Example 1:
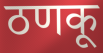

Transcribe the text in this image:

ठणकू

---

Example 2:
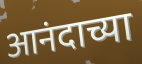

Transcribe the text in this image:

आनंदाच्या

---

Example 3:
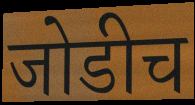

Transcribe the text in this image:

जोडीच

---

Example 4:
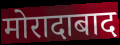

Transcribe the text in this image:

मोरादाबाद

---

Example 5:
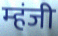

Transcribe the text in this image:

म्हंजी